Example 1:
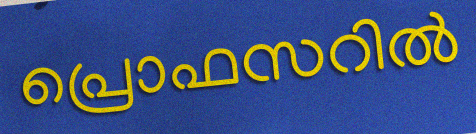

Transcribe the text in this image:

പ്രൊഫസറിൽ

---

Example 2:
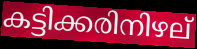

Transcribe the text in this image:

കട്ടിക്കരിനിഴല്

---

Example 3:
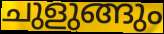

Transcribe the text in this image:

ചുളുങ്ങും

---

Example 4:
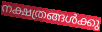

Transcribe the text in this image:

നക്ഷത്രങ്ങൾക്കു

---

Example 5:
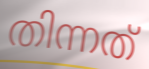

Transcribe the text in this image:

തിന്നത്